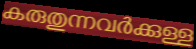
കരുതുന്നവർക്കുള്ള